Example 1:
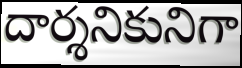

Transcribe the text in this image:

దార్శనికునిగా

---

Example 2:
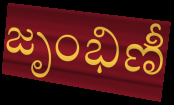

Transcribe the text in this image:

జృంభిణీ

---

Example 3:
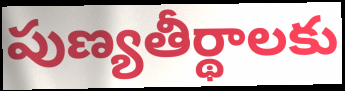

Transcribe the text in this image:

పుణ్యతీర్థాలకు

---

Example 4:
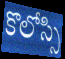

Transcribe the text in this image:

కొలోస్సి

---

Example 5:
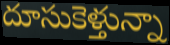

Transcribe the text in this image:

దూసుకెళ్తున్నా